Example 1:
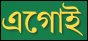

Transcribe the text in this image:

এগোই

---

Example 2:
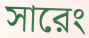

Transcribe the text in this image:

সারেং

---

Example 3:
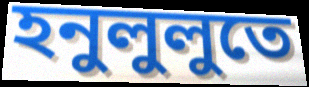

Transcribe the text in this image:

হনুলুলুতে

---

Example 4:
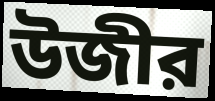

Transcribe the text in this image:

উজীর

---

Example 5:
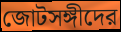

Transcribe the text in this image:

জোটসঙ্গীদের